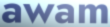
awam